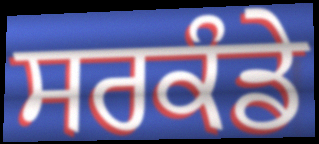
ਸਰਕੰਡੇ